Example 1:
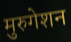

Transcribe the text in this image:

मुरुगेशन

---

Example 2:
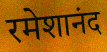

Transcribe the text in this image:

रमेशानंद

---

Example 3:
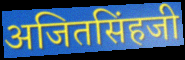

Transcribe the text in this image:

अजितसिंहजी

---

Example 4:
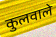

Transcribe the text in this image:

कुलवाले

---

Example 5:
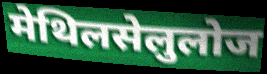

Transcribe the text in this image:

मेथिलसेलुलोज